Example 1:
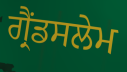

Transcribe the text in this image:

ਗ੍ਰੈਂਡਸਲੇਮ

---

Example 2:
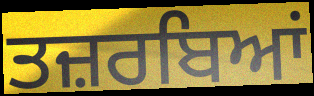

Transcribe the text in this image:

ਤਜ਼ਰਬਿਆਂ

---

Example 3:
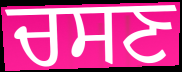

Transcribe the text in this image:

ਚਸਣ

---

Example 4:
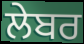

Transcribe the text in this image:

ਲੇਬਰ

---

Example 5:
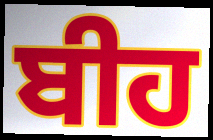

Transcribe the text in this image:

ਬੀਹ